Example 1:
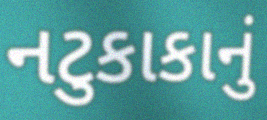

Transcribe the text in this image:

નટુકાકાનું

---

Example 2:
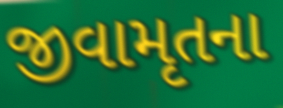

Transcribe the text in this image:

જીવામૃતના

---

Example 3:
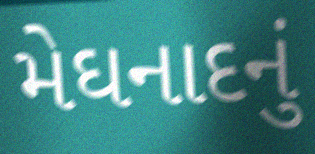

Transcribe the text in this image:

મેઘનાદનું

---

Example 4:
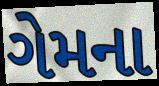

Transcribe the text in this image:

ગેમના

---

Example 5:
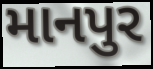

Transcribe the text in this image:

માનપુર